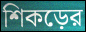
শিকড়ের